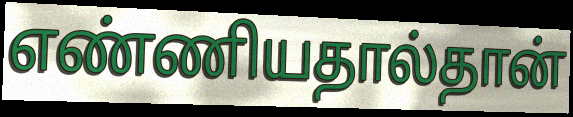
எண்ணியதால்தான்